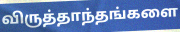
விருத்தாந்தங்களை